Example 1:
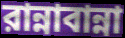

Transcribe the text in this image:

রান্নাবান্না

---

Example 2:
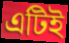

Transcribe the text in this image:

এটিই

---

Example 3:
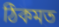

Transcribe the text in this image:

ঠিকমত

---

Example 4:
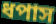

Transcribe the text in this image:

ধপাস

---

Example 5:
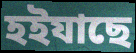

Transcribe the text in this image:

হইযাছে